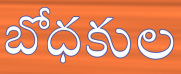
బోధకుల